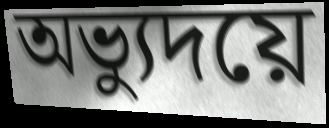
অভ্যুদয়ে